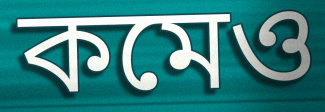
কমেও